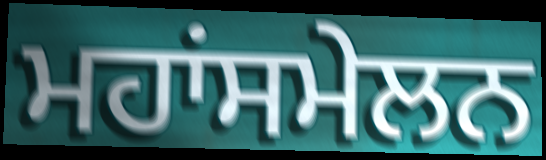
ਮਹਾਂਸਮੇਲਨ